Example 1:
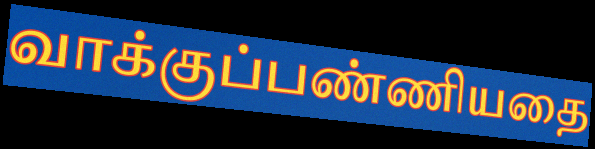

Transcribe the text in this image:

வாக்குப்பண்ணியதை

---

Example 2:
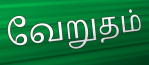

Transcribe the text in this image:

வேறுதம்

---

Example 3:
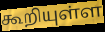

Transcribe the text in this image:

கூறியுள்ள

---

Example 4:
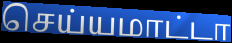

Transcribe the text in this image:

செய்யமாட்டா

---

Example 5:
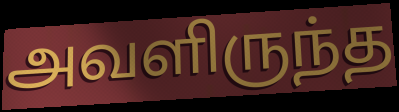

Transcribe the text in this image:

அவளிருந்த